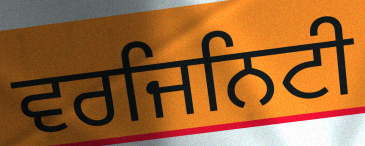
ਵਰਜਿਨਿਟੀ